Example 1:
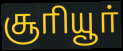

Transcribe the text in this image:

சூரியூர்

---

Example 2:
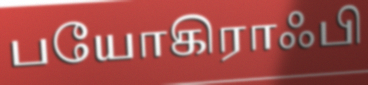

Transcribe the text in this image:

பயோகிராஃபி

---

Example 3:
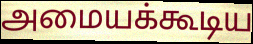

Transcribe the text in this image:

அமையக்கூடிய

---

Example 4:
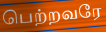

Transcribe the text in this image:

பெற்றவரே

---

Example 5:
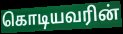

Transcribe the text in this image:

கொடியவரின்